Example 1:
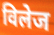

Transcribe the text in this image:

विलेज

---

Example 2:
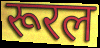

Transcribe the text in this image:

रूरल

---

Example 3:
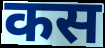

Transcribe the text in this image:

कस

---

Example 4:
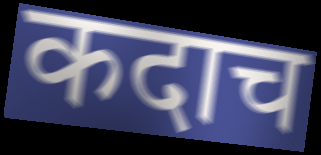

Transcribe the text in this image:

कदाच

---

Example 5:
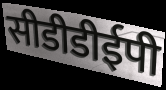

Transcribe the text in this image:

सीडीडीईपी